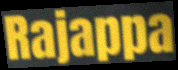
Rajappa